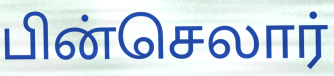
பின்செலார்